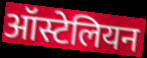
ऑस्टेलियन